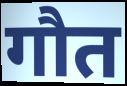
गौत